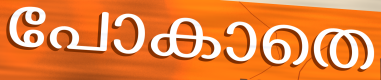
പോകാതെ